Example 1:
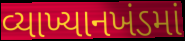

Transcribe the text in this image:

વ્યાખ્યાનખંડમાં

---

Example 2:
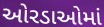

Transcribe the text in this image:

ઓરડાઓમાં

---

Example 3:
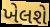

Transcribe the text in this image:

ખેલશે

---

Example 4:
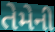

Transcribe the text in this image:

તેમેની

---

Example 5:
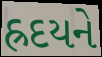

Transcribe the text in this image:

હ્રદયને